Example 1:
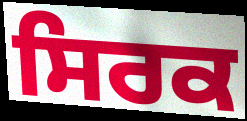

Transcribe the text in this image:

ਸਿਰਕ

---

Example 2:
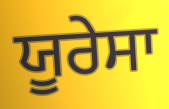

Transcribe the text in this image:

ਯੂਰੇਸਾ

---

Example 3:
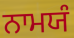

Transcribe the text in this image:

ਨਾਮਯੰ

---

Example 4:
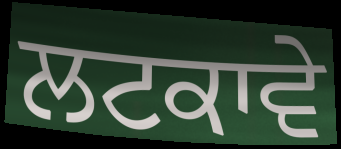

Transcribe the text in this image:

ਲਟਕਾਵੇ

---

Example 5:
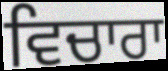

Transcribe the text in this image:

ਵਿਚਾਰਾ